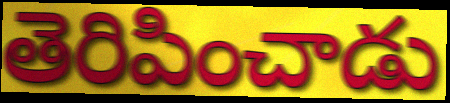
తెరిపించాడు